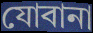
যোবানা